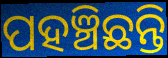
ପହଞ୍ଚିଛନ୍ତି